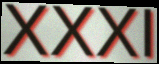
XXXI